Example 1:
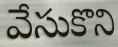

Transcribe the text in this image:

వేసుకొని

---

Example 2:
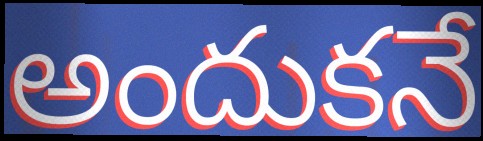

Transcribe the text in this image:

అందుకనే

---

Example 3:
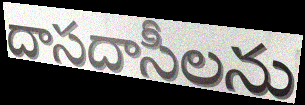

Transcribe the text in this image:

దాసదాసీలను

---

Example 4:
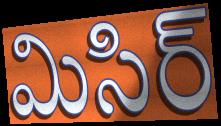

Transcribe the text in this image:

మిసిర్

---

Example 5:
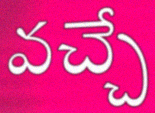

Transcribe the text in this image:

వచ్చే